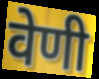
वेणी